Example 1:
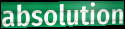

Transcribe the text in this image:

absolution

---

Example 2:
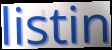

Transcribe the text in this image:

listin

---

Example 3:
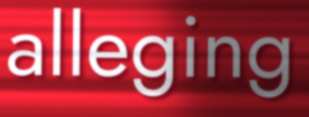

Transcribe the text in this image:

alleging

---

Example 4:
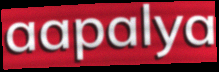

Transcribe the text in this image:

aapalya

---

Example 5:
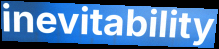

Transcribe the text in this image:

inevitability